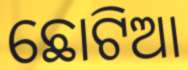
ଛୋଟିଆ